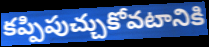
కప్పిపుచ్చుకోవటానికి